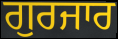
ਗੁਰਜਾਰ